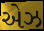
એઝ